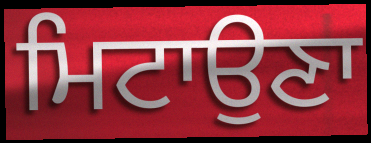
ਮਿਟਾਉਣਾ